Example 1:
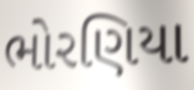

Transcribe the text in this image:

ભોરણિયા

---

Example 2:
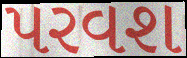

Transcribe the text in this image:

પરવશ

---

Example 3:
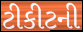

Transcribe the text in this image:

ટીકીટની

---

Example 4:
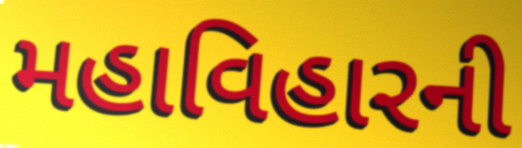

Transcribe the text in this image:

મહાવિહારની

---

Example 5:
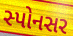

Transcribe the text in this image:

સ્પોનસર